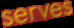
serves